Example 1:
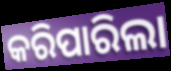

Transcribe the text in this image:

କରିପାରିଲା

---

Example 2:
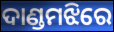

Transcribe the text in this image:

ଦାଣ୍ଡମଝିରେ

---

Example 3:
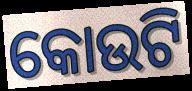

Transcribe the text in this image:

କୋଉଟି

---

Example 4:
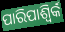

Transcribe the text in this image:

ପାରିପାଶ୍ୱିର୍କ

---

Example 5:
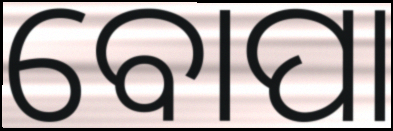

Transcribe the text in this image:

ବୋପା